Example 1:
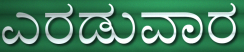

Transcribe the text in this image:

ಎರಡುವಾರ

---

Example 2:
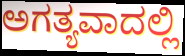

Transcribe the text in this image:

ಅಗತ್ಯವಾದಲ್ಲಿ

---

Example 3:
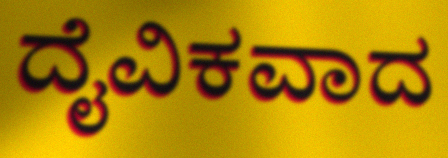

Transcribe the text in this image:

ದೈವಿಕವಾದ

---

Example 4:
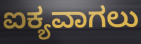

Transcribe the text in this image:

ಐಕ್ಯವಾಗಲು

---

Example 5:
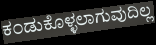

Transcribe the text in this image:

ಕಂಡುಕೊಳ್ಳಲಾಗುವುದಿಲ್ಲ